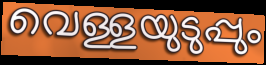
വെള്ളയുടുപ്പും